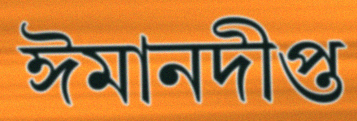
ঈমানদীপ্ত